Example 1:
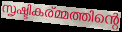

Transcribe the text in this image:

സൃഷ്ടികര്മ്മത്തിന്റെ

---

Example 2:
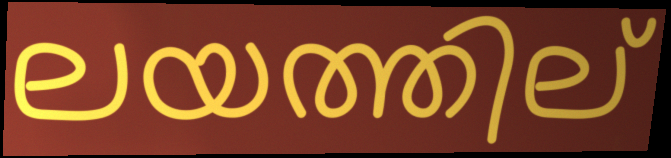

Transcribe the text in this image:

ലയത്തില്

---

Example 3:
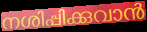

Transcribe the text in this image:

നശിപ്പിക്കുവാൻ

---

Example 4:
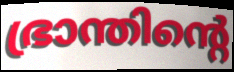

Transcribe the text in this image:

ഭ്രാന്തിന്റെ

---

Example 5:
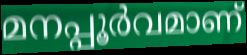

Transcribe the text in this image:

മനപ്പൂർവമാണ്